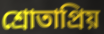
শ্রোতাপ্রিয়